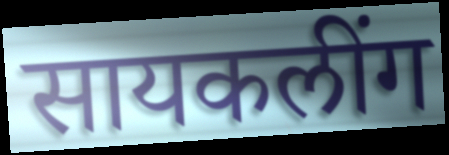
सायकलींग